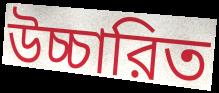
উচ্চারিত